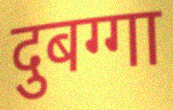
दुबग्गा